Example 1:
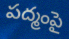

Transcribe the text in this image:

పద్మంపై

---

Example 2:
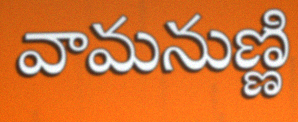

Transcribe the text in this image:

వామనుణ్ణి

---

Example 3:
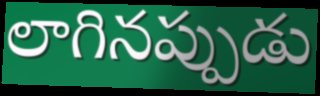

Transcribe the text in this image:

లాగినప్పుడు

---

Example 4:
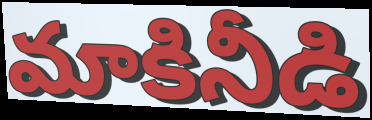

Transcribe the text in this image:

మాకినీడి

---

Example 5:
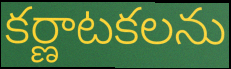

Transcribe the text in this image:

కర్ణాటకలను